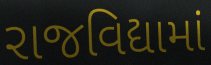
રાજવિદ્યામાં